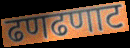
ढणढणाट